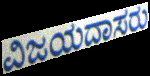
ವಿಜಯದಾಸರು